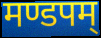
मण्डपम्